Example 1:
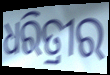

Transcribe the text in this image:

ଧରିତ୍ରୀର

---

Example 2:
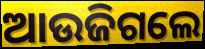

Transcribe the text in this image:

ଆଉଜିଗଲେ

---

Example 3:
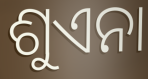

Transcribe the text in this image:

ଶୁଏନା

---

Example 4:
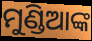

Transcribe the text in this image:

ମୁଣ୍ଡିଆଙ୍କ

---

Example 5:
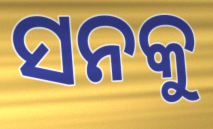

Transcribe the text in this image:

ସନକୁ